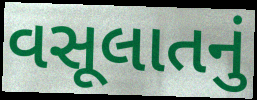
વસૂલાતનું